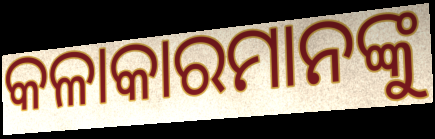
କଳାକାରମାନଙ୍କୁ